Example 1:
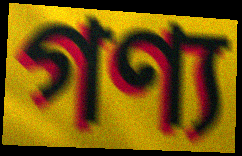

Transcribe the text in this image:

গণ্য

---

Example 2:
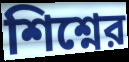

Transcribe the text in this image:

শিশ্নের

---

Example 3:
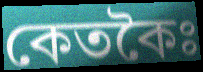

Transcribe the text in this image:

কেতকৈঃ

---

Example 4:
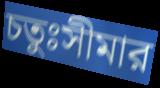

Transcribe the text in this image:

চতুঃসীমার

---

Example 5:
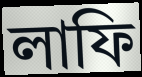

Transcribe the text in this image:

লাফি